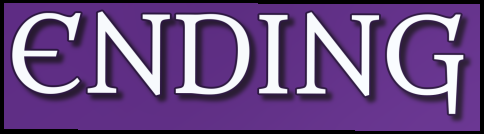
ENDING